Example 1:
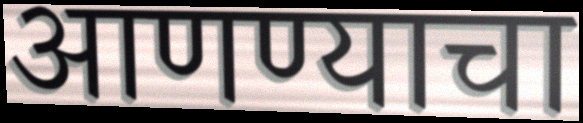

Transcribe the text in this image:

आणण्याचा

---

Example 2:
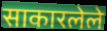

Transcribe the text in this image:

साकारलेले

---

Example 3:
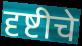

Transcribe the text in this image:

दृष्टीचे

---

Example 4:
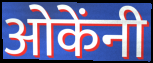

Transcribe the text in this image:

ओकेंनी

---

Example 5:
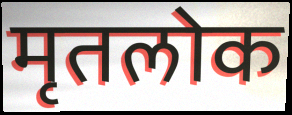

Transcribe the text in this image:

मृतलोक